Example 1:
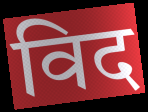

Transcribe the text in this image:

विद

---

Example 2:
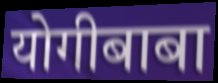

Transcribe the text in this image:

योगीबाबा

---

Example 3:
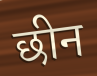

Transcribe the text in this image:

छीन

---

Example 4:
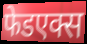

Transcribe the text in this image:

फेडएक्स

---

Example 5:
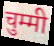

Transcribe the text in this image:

चुम्मी